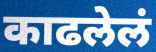
काढलेलं